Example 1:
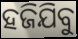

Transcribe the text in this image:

ହଜିଯିବୁ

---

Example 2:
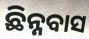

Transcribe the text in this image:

ଛିନ୍ନବାସ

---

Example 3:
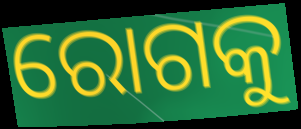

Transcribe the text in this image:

ରୋଗକୁ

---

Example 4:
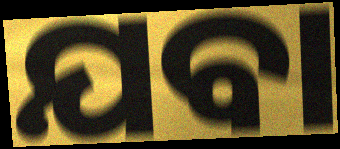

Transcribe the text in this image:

ଯବା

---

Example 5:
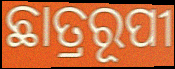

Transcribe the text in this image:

ଛାତ୍ରରୂପୀ